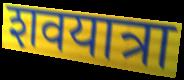
शवयात्रा